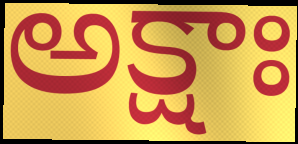
అక్షాః